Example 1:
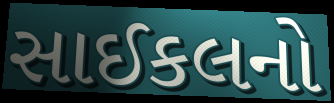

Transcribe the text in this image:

સાઈકલનો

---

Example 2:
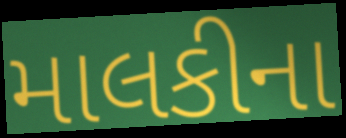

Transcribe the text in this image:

માલકીના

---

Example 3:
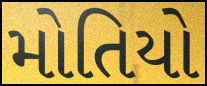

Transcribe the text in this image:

મોતિયો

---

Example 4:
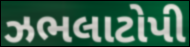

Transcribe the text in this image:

ઝભલાટોપી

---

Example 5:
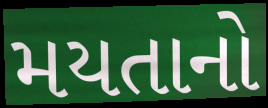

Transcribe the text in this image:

મયતાનો